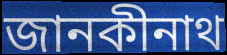
জানকীনাথ